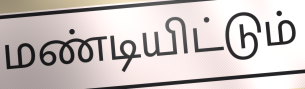
மண்டியிட்டும்